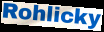
Rohlicky